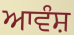
ਆਵੰਸ਼